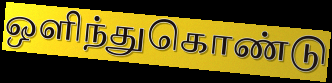
ஒளிந்துகொண்டு